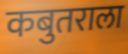
कबुतराला